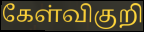
கேள்விகுறி